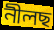
নীলছ